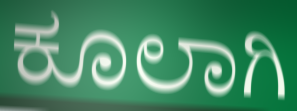
ಕೂಲಾಗಿ